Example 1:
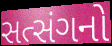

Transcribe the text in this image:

સત્સંગનો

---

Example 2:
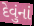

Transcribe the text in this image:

દેવુંનાં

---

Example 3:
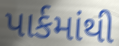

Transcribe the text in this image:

પાર્કમાંથી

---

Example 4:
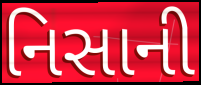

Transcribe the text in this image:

નિસાની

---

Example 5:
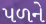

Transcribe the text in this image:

પળને